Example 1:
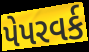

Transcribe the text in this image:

પેપરવર્ક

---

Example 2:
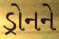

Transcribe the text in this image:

ડ્રોનને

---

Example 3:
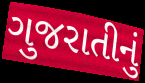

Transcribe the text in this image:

ગુજરાતીનું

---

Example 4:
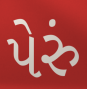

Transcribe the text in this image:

પેરું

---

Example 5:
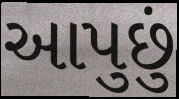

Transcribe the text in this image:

આપુછું